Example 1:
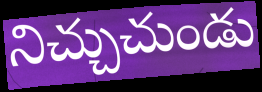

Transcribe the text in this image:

నిచ్చుచుండు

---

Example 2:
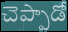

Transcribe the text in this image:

చెప్పాడో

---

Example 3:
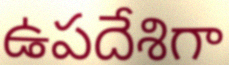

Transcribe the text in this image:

ఉపదేశిగా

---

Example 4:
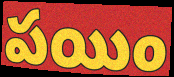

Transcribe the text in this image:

పయిం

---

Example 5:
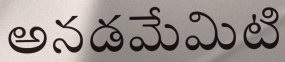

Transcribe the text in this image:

అనడమేమిటి